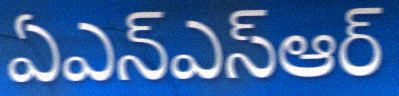
ఏఎన్ఎస్ఆర్